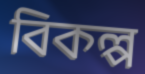
বিকল্প